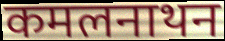
कमलनाथन